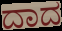
ದಾದ